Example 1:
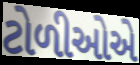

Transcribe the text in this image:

ટોળીઓએ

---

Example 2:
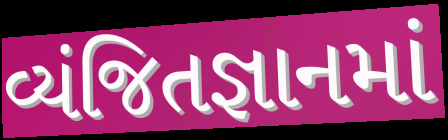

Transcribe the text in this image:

વ્યંજિતજ્ઞાનમાં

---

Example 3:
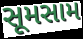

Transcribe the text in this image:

સૂમસામ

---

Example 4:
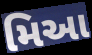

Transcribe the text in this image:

મિઆ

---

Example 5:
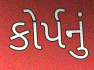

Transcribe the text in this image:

કોર્પનું